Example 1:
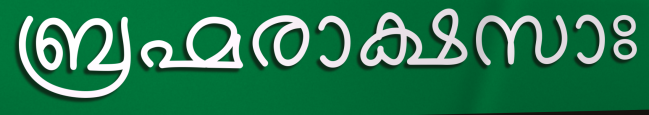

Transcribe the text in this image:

ബ്രഹ്മരാക്ഷസാഃ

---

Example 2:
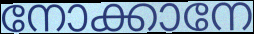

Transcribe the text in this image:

നോക്കാനേ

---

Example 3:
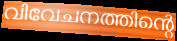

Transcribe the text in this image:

വിവേചനത്തിന്റെ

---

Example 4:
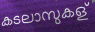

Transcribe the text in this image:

കടലാസുകള്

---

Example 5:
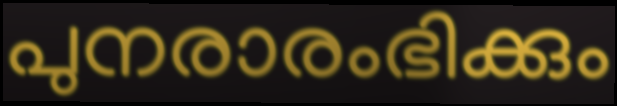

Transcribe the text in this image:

പുനരാരംഭിക്കും